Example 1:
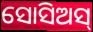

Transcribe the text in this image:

ସୋସିଅସ୍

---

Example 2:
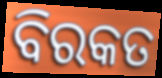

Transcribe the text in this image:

ବିରକତ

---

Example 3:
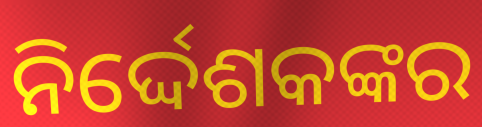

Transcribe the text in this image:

ନିର୍ଦ୍ଦେଶକଙ୍କର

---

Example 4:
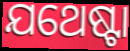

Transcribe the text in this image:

ଯଥେଷ୍ଟା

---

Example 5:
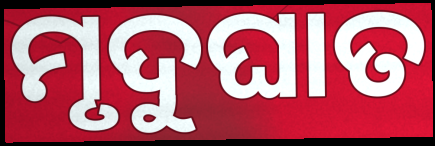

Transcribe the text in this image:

ମୃଦୁଘାତ